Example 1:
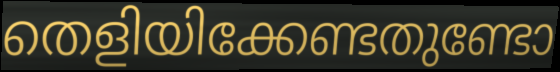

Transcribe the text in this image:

തെളിയിക്കേണ്ടതുണ്ടോ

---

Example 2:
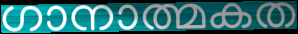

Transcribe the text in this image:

ഗാനാത്മകത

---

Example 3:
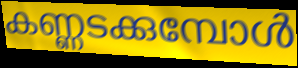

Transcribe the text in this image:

കണ്ണടക്കുമ്പോൾ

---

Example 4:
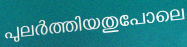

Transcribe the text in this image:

പുലർത്തിയതുപോലെ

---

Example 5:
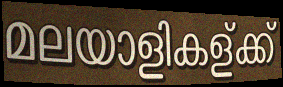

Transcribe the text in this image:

മലയാളികള്ക്ക്